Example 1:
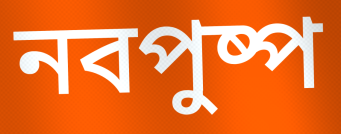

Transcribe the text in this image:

নবপুষ্প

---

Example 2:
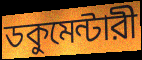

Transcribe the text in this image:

ডকুমেন্টারী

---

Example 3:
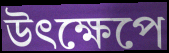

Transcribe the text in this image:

উৎক্ষেপে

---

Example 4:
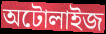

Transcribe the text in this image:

অটোলাইজ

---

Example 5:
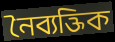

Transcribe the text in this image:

নৈব্যক্তিক